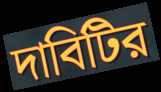
দাবিটির